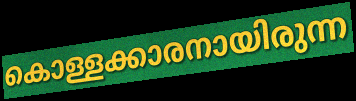
കൊള്ളക്കാരനായിരുന്ന